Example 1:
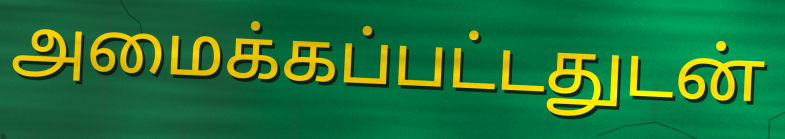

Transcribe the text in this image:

அமைக்கப்பட்டதுடன்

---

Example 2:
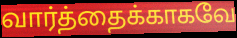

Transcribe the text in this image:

வார்த்தைக்காகவே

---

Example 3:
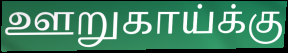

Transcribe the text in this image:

ஊறுகாய்க்கு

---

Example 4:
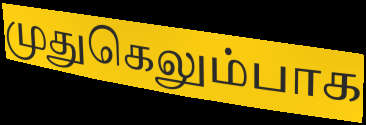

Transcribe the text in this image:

முதுகெலும்பாக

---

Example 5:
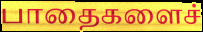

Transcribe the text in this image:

பாதைகளைச்